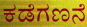
ಕಡೆಗಣನೆ